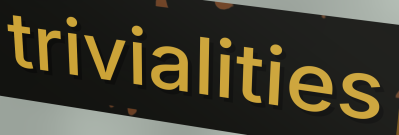
trivialities